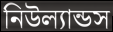
নিউল্যান্ডস